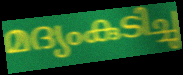
മദ്യംകുടിച്ചു